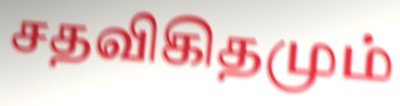
சதவிகிதமும்